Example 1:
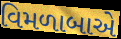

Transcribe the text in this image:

વિમળાબાએ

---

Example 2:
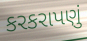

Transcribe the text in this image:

કરકરાપણું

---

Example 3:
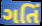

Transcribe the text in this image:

ગતિં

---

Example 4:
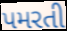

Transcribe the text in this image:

પમરતી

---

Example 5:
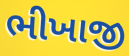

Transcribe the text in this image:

ભીખાજી